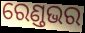
ରେଣ୍ଡଭର